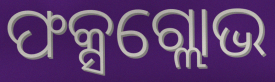
ଫକ୍ସଗ୍ଲୋଭ